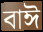
বাঈ